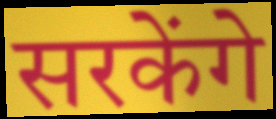
सरकेंगे